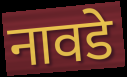
नावडे